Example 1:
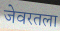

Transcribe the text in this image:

जेवरतला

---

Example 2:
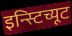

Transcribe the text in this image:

इन्स्टिच्यूट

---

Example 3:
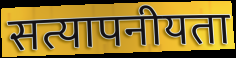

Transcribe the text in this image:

सत्यापनीयता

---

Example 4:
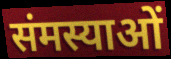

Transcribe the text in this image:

संमस्याओं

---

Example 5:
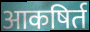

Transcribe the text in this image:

आकषिर्त